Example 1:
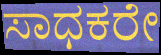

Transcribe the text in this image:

ಸಾಧಕರೇ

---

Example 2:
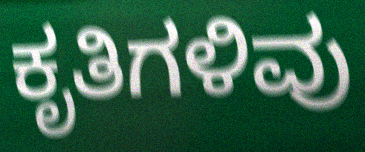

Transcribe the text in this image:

ಕೃತಿಗಳಿವು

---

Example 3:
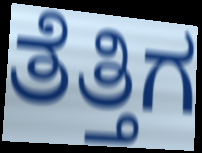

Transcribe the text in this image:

ತೆತ್ತಿಗ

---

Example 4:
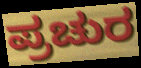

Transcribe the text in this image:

ಪ್ರಚುರ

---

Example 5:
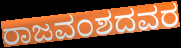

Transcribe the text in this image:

ರಾಜವಂಶದವರ